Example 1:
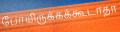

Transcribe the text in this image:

போயிருக்கக்கூடாதா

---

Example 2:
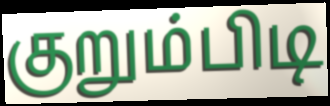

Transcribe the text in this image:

குறும்பிடி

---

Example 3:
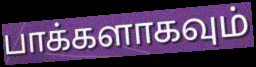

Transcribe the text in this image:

பாக்களாகவும்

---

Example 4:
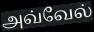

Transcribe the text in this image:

அவ்வேல்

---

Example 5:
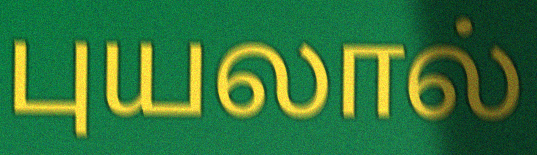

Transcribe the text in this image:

புயலால்